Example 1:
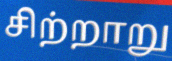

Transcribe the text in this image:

சிற்றாறு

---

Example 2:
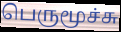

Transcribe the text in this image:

பெருமூச்சு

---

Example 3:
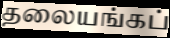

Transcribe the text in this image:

தலையங்கப்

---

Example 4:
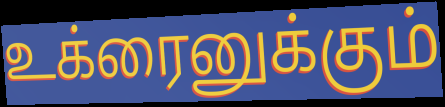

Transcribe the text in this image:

உக்ரைனுக்கும்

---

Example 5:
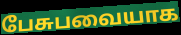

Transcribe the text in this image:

பேசுபவையாக